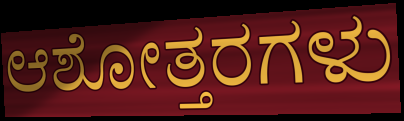
ಆಶೋತ್ತರಗಳು